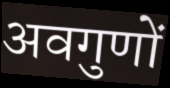
अवगुणों